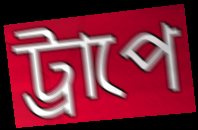
ট্রাপে